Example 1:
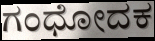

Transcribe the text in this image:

ಗಂಧೋದಕ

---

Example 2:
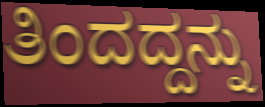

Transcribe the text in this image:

ತಿಂದದ್ದನ್ನು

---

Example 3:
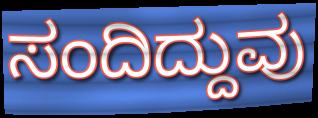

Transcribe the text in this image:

ಸಂದಿದ್ದುವು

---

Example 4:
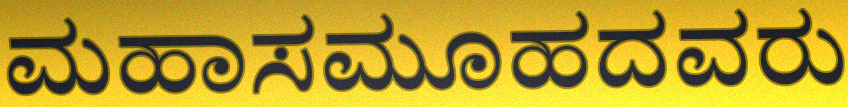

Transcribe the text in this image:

ಮಹಾಸಮೂಹದವರು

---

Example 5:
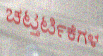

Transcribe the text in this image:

ಚಟ್ತರ್ಟಿಕೆಗಳ